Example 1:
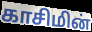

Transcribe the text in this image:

காசிமின்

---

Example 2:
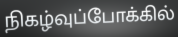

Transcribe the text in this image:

நிகழ்வுப்போக்கில்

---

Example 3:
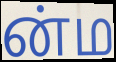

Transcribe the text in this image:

ன்ம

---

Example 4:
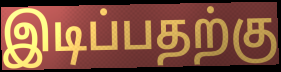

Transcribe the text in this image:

இடிப்பதற்கு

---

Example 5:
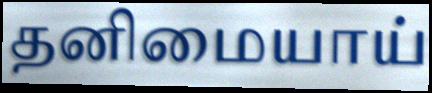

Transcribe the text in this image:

தனிமையாய்